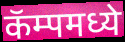
कॅम्पमध्ये